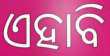
ଏହାବି